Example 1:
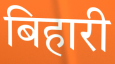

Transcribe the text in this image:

बिहारी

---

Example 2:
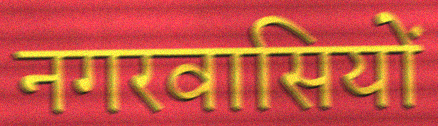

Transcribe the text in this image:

नगरवासियों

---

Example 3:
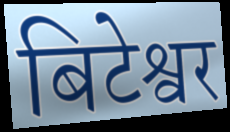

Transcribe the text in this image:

बिटेश्वर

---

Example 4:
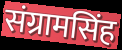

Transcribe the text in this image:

संग्रामसिंह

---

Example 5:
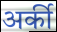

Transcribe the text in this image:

अर्की